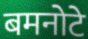
बमनोटे